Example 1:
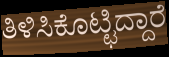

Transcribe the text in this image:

ತಿಳಿಸಿಕೊಟ್ಟಿದ್ದಾರೆ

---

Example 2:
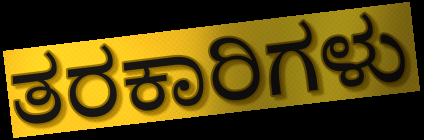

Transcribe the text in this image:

ತರಕಾರಿಗಳು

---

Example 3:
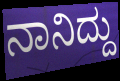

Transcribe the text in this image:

ನಾನಿದ್ದು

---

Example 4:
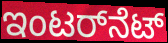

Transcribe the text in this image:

ಇಂಟರ್‌ನೆಟ್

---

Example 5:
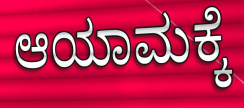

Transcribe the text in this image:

ಆಯಾಮಕ್ಕೆ